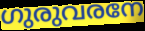
ഗുരുവരനേ